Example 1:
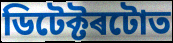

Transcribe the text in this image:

ডিটেক্টৰটোত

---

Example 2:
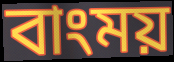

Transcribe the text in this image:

বাংময়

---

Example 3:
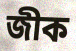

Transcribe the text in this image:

জীক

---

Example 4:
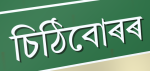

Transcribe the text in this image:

চিঠিবোৰৰ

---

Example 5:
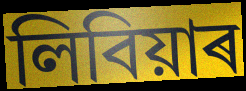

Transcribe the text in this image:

লিবিয়াৰ